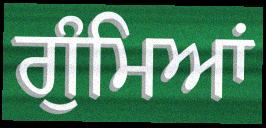
ਗੁੰਮਿਆਂ